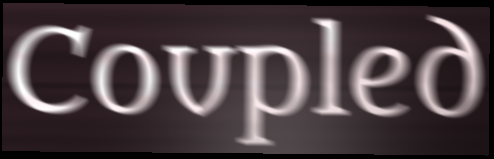
Coupled